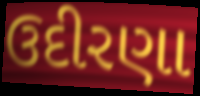
ઉદીરણા